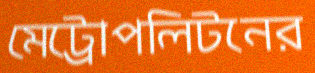
মেট্রোপলিটনের